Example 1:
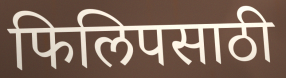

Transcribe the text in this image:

फिलिपसाठी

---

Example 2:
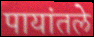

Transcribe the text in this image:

पायांतले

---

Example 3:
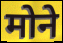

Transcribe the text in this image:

मोने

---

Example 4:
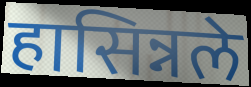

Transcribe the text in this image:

हासिन्नले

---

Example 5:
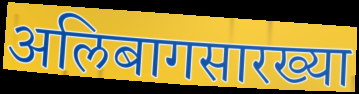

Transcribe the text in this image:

अलिबागसारख्या